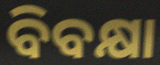
ବିବକ୍ଷା